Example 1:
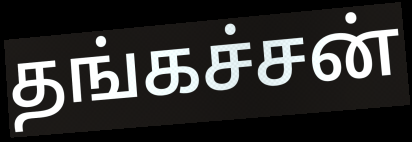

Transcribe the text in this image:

தங்கச்சன்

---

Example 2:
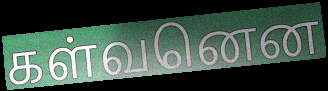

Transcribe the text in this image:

கள்வனென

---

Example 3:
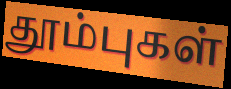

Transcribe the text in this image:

தூம்புகள்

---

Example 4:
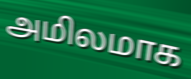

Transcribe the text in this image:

அமிலமாக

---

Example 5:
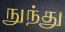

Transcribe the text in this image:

நுந்து